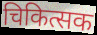
चिकित्सक